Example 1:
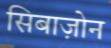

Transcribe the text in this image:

सिबाज़ोन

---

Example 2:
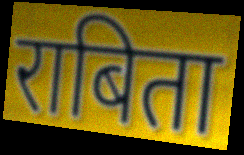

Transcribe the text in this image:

राबिता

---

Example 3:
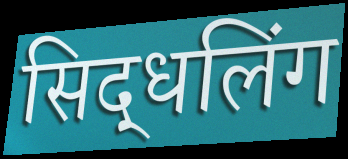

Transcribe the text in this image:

सिद्धलिंग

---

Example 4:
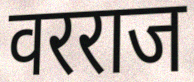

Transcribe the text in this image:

वरराज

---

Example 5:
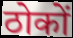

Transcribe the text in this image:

ठोकों